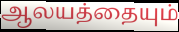
ஆலயத்தையும்